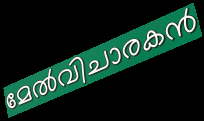
മേൽവിചാരകൻ